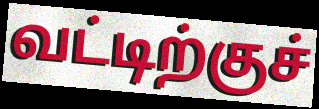
வட்டிற்குச்